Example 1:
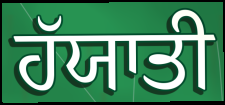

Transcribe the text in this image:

ਹੱਯਾਤੀ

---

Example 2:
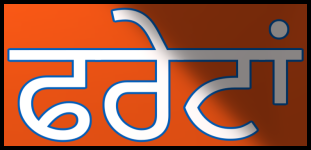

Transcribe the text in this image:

ਫਰੇਟਾਂ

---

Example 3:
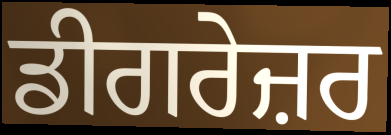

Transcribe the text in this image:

ਡੀਗਰੇਜ਼ਰ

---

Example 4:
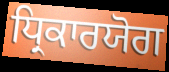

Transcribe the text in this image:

ਧ੍ਰਿਕਾਰਯੋਗ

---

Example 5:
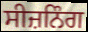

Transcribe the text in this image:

ਸੀਜ਼ਨਿੰਗ